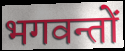
भगवन्तों